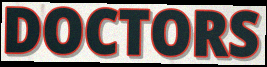
DOCTORS